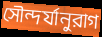
সৌন্দর্যানুরাগ